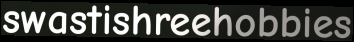
swastishreehobbies